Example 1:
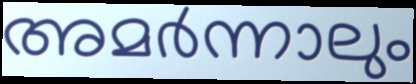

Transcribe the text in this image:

അമർന്നാലും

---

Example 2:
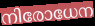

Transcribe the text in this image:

നിരോധേന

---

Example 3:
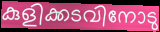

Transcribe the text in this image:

കുളിക്കടവിനോടു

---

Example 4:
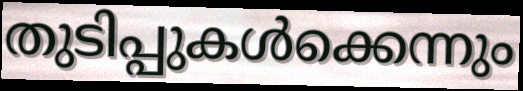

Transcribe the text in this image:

തുടിപ്പുകൾക്കെന്നും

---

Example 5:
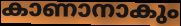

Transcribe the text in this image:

കാണാനാകും